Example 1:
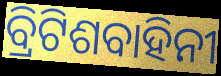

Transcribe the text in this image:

ବ୍ରିଟିଶବାହିନୀ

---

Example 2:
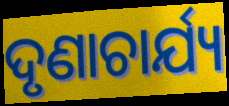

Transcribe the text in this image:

ଦୃଣାଚାର୍ଯ୍ୟ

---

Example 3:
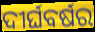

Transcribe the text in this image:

ଦୀର୍ଘବର୍ଷର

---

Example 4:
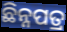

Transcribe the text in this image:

ଛିନ୍ନପତ୍ର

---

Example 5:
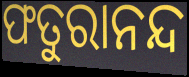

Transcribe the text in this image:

ଫତୁରାନନ୍ଦ